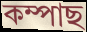
কম্পাছ